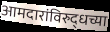
आमदारांविरुद्धच्या